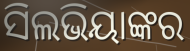
ସିଲଭିୟାଙ୍କର